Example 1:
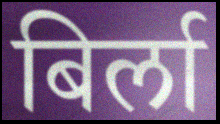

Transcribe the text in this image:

बिर्ला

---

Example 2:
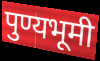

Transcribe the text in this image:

पुण्यभूमी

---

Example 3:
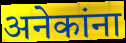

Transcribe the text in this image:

अनेकांना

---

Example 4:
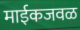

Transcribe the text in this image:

माईकजवळ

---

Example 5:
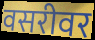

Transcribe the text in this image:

वसरीवर